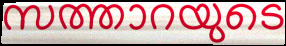
സത്താറയുടെ